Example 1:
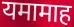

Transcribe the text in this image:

यमामाह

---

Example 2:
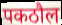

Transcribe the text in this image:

पकठौल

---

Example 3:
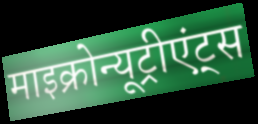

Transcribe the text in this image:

माइक्रोन्यूट्रीएंट्स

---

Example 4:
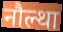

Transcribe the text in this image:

नौल्था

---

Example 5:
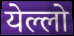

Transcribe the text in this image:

येल्लो